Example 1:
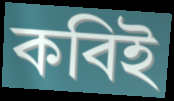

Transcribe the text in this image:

কবিই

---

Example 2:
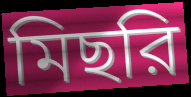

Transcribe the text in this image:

মিছরি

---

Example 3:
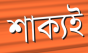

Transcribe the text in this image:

শাক্যই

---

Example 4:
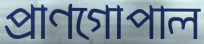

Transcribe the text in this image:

প্রাণগোপাল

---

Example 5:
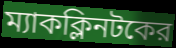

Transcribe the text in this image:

ম্যাকক্লিনটকের